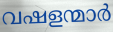
വഷളന്മാർ